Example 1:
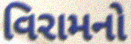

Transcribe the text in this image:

વિરામનો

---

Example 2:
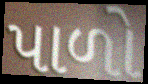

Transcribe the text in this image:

પાળો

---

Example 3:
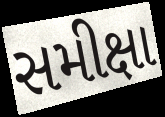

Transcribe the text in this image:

સમીક્ષા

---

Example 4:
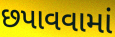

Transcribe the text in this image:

છપાવવામાં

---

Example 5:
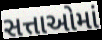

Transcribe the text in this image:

સત્તાઓમાં